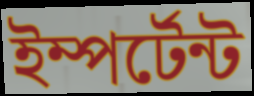
ইম্পর্টেন্ট